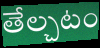
తేల్చటం